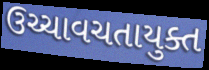
ઉચ્ચાવચતાયુક્ત